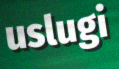
uslugi